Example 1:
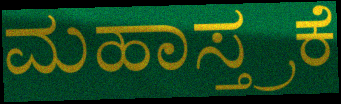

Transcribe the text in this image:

ಮಹಾಸ್ತ್ರಕೆ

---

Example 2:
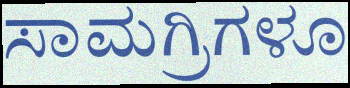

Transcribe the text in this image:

ಸಾಮಗ್ರಿಗಳೂ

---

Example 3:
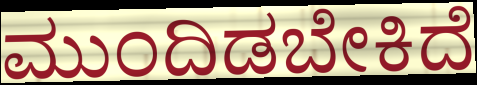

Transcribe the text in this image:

ಮುಂದಿಡಬೇಕಿದೆ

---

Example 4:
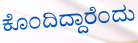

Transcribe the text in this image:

ಕೊಂದಿದ್ದಾರೆಂದು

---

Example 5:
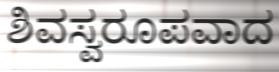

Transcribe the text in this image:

ಶಿವಸ್ವರೂಪವಾದ